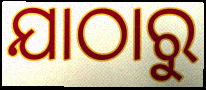
ଯାଠାରୁ